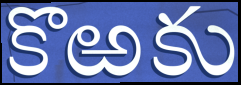
కొఱకు